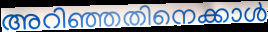
അറിഞ്ഞതിനെക്കാൾ